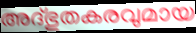
അദ്ഭുതകരവുമായ